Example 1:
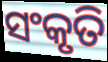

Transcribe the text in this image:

ସଂକୃତି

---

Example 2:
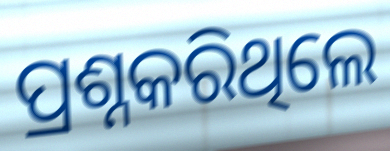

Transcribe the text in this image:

ପ୍ରଶ୍ନକରିଥିଲେ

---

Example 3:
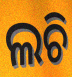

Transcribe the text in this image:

ଲଚି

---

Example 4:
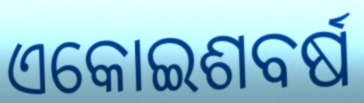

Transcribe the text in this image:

ଏକୋଇଶବର୍ଷ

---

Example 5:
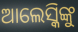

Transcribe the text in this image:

ଆଲେସ୍କିଙ୍କୁ